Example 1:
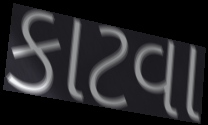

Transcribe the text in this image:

કાટવા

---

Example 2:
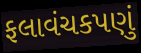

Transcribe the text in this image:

ફલાવંચકપણું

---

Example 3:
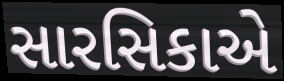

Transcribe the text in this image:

સારસિકાએ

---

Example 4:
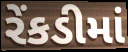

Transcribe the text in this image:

રેંકડીમાં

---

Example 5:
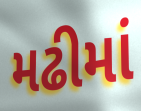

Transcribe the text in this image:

મઢીમાં